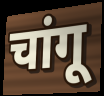
चांगू